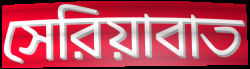
সেরিয়াবাত